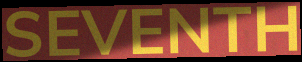
SEVENTH